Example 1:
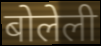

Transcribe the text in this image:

बोलेली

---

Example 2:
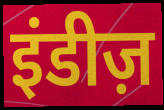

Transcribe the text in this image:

इंडीज़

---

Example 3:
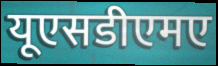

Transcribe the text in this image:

यूएसडीएमए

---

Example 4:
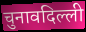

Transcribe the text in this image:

चुनावदिल्ली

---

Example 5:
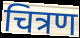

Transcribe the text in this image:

चित्रण